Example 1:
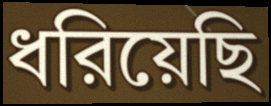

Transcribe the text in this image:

ধরিয়েছি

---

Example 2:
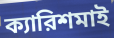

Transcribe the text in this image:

ক্যারিশমাই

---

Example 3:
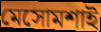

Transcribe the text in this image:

মেসোমশাই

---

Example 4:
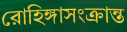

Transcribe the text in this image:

রোহিঙ্গাসংক্রান্ত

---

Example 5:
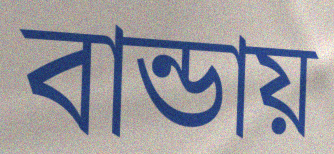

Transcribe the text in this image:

বান্ডায়